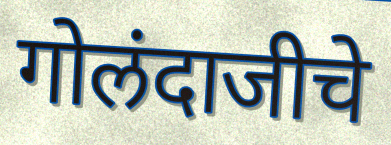
गोलंदाजीचे